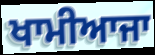
ਖਾਮੀਆਜਾ